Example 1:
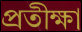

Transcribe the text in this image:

প্রতীক্ষা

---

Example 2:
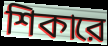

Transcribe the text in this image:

শিকারে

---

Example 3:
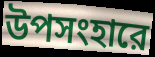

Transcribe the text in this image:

উপসংহারে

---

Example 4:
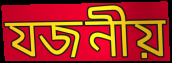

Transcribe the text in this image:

যজনীয়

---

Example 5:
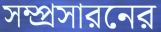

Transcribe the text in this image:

সম্প্রসারনের